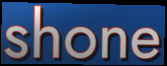
shone